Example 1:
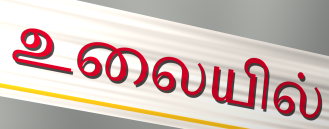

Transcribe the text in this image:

உலையில்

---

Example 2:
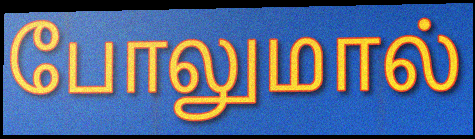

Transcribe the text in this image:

போலுமால்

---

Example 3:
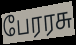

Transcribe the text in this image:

பேரரசு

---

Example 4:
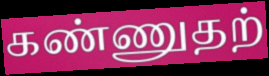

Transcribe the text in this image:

கண்ணுதற்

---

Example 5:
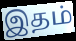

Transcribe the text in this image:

இதம்